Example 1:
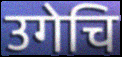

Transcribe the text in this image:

उगेचि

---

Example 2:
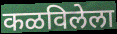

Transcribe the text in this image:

कळविलेला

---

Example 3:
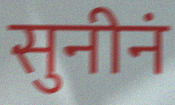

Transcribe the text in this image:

सुनीनं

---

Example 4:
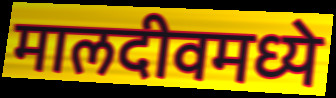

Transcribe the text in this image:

मालदीवमध्ये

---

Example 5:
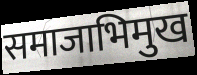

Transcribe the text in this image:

समाजाभिमुख